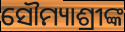
ସୌମ୍ୟାଶ୍ରୀଙ୍କ